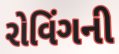
રોવિંગની